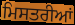
ਮਿਸਤਰੀਆਂ